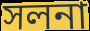
সলনা